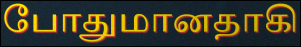
போதுமானதாகி